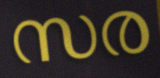
സര